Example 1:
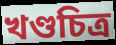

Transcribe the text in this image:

খণ্ডচিত্র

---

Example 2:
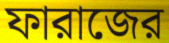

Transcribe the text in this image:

ফারাজের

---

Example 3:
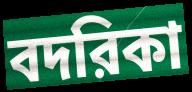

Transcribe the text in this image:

বদরিকা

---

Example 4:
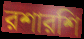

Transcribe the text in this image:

রশারশি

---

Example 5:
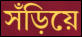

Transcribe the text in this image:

সঁড়িয়ে